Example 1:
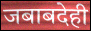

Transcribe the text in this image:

जबाबदेही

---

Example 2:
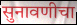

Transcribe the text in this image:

सुनावणीचा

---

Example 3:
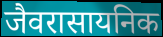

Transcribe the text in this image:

जैवरासायनिक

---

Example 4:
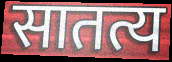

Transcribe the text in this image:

सातत्य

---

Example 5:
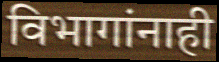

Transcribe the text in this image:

विभागांनाही